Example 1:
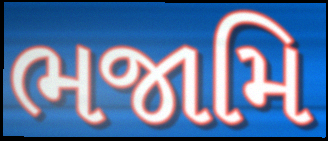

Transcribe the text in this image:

ભજામિ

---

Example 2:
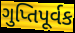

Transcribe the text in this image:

ગુપ્તિપૂર્વક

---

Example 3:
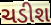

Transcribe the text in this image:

ચડીશ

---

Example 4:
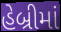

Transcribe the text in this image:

હેબ્રીમાં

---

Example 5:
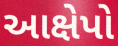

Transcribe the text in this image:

આક્ષેપો